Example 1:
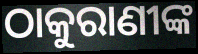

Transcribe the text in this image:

ଠାକୁରାଣୀଙ୍କ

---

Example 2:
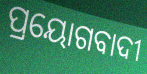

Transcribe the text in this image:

ପ୍ରୟୋଗବାଦୀ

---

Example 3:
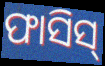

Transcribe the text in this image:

ଫାସିସ୍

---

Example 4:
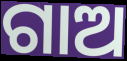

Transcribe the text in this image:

ଗାଅ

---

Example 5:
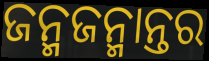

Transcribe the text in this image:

ଜନ୍ମଜନ୍ମାନ୍ତର